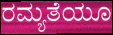
ರಮ್ಯತೆಯೂ